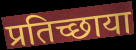
प्रतिच्छाया